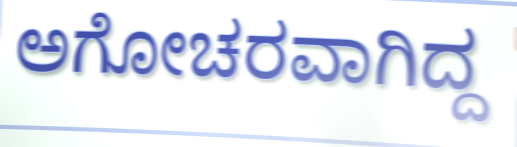
ಅಗೋಚರವಾಗಿದ್ದ